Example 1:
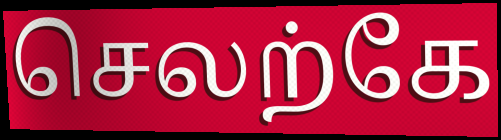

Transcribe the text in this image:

செலற்கே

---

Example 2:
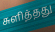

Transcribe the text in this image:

சுளித்தது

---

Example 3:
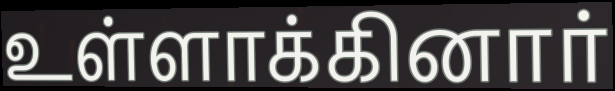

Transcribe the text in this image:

உள்ளாக்கினார்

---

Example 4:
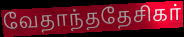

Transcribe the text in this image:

வேதாந்ததேசிகர்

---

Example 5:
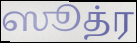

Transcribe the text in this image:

ஸூத்ர